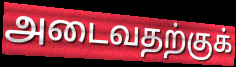
அடைவதற்குக்